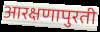
आरक्षणापुरती